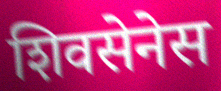
शिवसेनेस